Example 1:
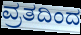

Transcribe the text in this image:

ವ್ರತದಿಂದ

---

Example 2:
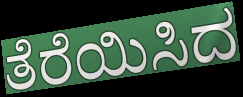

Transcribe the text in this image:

ತೆರೆಯಿಸಿದ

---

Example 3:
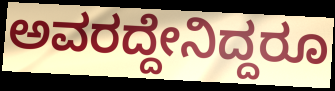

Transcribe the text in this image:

ಅವರದ್ದೇನಿದ್ದರೂ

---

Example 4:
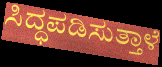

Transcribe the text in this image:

ಸಿದ್ಧಪಡಿಸುತ್ತಾಳೆ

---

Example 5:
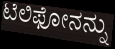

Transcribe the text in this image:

ಟೆಲಿಫೋನನ್ನು